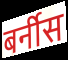
बर्नीस